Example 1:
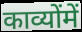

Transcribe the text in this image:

काव्योंमें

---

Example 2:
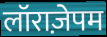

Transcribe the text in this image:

लॉराज़ेपम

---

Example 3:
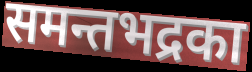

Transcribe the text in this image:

समन्तभद्रका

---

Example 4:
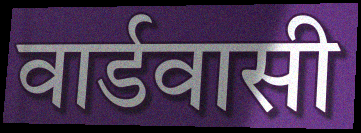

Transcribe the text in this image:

वार्डवासी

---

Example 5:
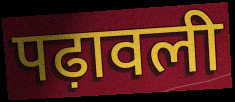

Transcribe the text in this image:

पढ़ावली